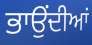
ਭਾਉਂਦੀਆਂ